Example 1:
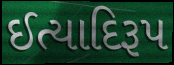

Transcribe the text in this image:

ઈત્યાદિરૂપ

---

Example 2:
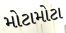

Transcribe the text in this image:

મોટામોટા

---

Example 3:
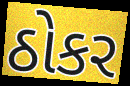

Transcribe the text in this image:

ઠોકર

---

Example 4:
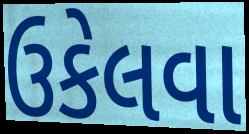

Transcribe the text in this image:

ઉકેલવા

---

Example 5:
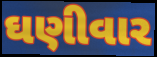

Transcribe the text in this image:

ઘણીવાર